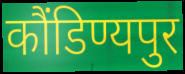
कौंडिण्यपुर